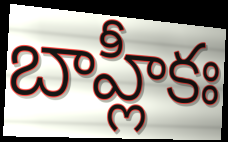
బాహ్లీకః